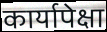
कार्यापेक्षा